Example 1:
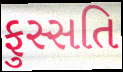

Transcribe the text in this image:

ફુસ્સતિ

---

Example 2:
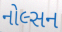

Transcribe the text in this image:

નોલ્સન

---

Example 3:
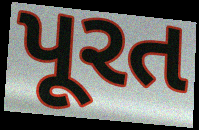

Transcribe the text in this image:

પૂરત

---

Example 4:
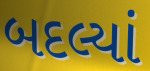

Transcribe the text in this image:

બદલ્યાં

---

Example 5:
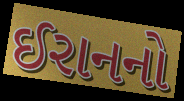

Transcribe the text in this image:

ઈરાનનો